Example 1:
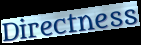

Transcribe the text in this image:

Directness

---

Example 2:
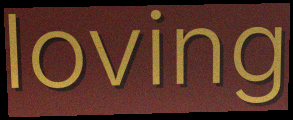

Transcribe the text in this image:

loving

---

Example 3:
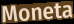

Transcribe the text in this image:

Moneta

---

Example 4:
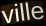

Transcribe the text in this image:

ville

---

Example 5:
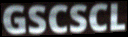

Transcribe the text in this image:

GSCSCL